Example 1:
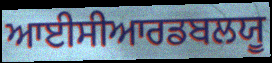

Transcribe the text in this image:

ਆਈਸੀਆਰਡਬਲਯੂ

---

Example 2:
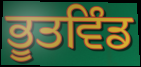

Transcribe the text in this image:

ਭੂਤਵਿੰਡ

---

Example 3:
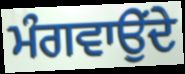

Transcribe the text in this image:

ਮੰਗਵਾਉਂਦੇ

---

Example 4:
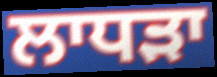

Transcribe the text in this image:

ਲਾਧੜਾ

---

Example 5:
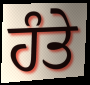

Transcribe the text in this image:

ਹੰਤੇ